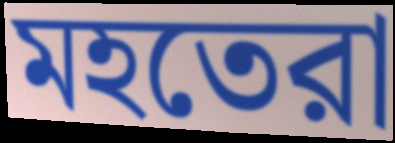
মহতেরা